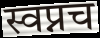
स्वप्नच